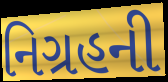
નિગ્રહની